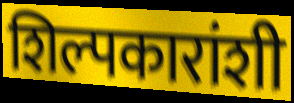
शिल्पकारांशी